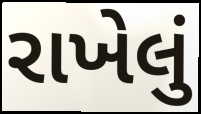
રાખેલું